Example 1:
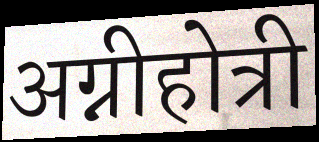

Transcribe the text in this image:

अग्नीहोत्री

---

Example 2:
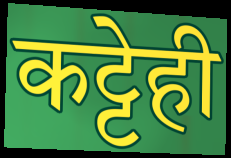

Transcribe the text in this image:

कट्टेही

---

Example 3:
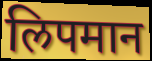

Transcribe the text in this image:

लिपमान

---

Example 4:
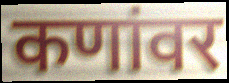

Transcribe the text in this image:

कणांवर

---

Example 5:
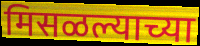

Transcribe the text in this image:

मिसळल्याच्या